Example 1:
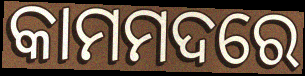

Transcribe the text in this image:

କାମମଦରେ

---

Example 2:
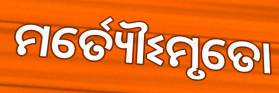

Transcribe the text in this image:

ମର୍ତ୍ୟୌଽମୃତୋ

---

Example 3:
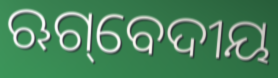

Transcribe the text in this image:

ଋଗ୍‌ବେଦୀୟ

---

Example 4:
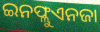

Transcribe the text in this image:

ଇନଫ୍ଲୁଏନଜା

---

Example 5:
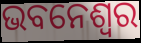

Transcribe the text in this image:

ଭବନେଶ୍ୱର